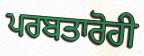
ਪਰਬਤਾਰੋਹੀ